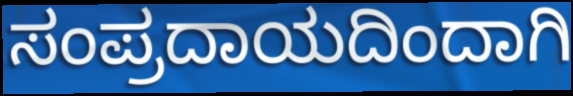
ಸಂಪ್ರದಾಯದಿಂದಾಗಿ